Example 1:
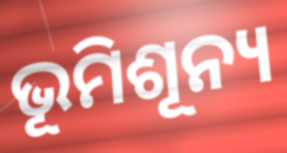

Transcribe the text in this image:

ଭୂମିଶୂନ୍ୟ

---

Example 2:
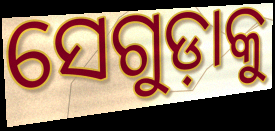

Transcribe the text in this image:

ସେଗୁଡ଼ାକୁ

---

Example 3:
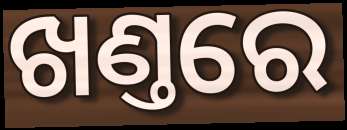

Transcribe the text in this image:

ଖଣ୍ତରେ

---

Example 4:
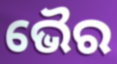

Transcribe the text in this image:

ଭୈର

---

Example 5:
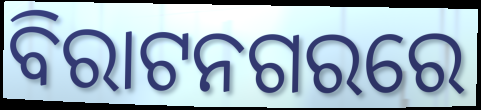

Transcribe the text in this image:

ବିରାଟନଗରରେ